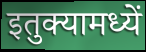
इतुक्यामध्यें